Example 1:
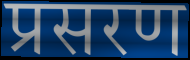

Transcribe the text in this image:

प्रसरण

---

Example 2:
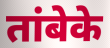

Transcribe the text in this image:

तांबेके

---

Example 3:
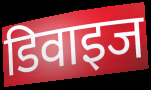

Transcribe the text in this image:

डिवाइज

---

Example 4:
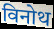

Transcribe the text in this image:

विनोथ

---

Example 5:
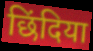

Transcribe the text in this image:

छिंदिया